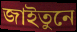
জাইতুনে